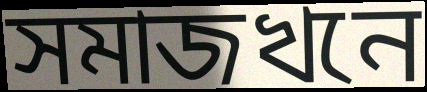
সমাজখনে